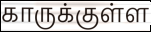
காருக்குள்ள